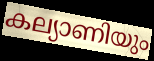
കല്യാണിയും